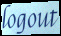
logout